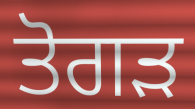
ਤੋਗੜ